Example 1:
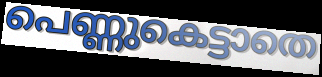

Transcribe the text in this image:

പെണ്ണുകെട്ടാതെ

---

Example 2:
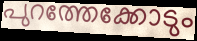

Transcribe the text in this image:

പുറത്തേക്കോടും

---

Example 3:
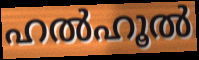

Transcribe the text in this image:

ഹൽഹൂൽ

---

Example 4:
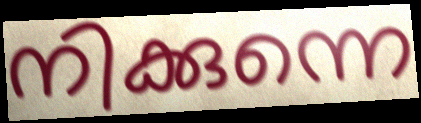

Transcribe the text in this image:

നിക്കുന്നെ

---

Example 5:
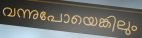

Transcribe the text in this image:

വന്നുപോയെങ്കിലും